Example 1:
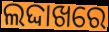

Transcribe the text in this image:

ଲଦ୍ଦାଖରେ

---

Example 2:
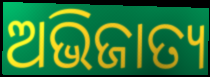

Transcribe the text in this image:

ଅଭିଜାତ୍ୟ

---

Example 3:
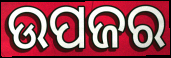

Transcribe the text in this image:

ଉପଜର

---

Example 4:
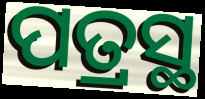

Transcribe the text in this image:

ପତ୍ରସ୍ଥ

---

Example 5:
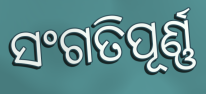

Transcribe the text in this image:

ସଂଗତିପୂର୍ଣ୍ଣ